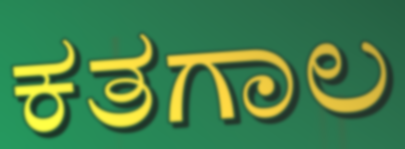
ಕತಗಾಲ